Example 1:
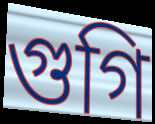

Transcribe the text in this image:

গুগি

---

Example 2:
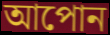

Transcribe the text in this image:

আপোন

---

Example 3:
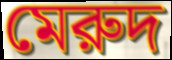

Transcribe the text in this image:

মেরুদ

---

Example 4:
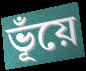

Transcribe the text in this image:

ভূঁয়ে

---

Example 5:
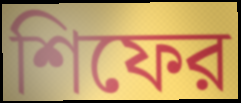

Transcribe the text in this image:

শিফের